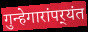
गुन्हेगारांपर्यंत